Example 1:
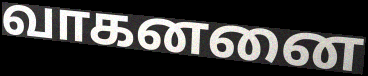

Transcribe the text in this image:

வாகனனை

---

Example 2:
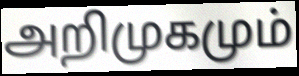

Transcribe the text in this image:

அறிமுகமும்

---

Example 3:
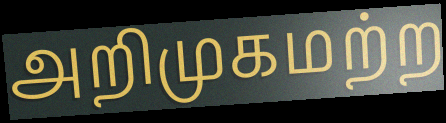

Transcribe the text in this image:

அறிமுகமற்ற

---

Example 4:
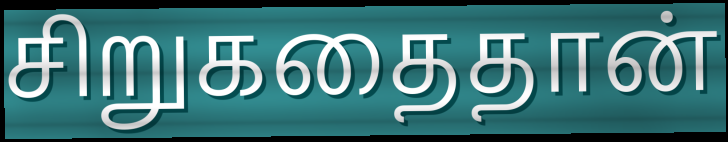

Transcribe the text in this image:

சிறுகதைதான்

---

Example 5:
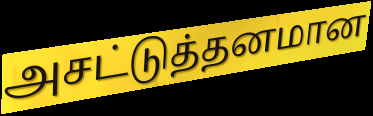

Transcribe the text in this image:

அசட்டுத்தனமான